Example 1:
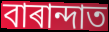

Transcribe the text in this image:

বাৰান্দাত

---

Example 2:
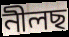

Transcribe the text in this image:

নীলছ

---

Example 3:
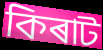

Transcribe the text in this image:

কিৰাট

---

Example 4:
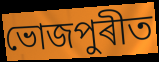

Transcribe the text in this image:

ভোজপুৰীত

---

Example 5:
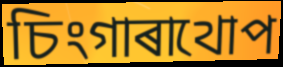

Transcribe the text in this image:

চিংগাৰাথোপ